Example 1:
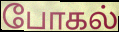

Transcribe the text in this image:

போகல்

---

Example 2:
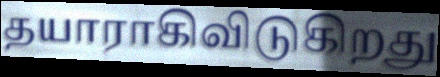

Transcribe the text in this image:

தயாராகிவிடுகிறது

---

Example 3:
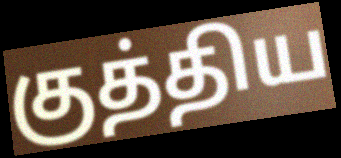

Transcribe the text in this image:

குத்திய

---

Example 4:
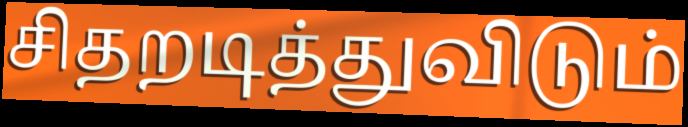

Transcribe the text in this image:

சிதறடித்துவிடும்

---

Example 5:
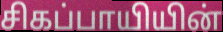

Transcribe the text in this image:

சிகப்பாயியின்